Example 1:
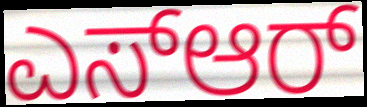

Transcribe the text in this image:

ಎಸ್ಆರ್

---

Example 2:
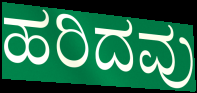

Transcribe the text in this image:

ಹರಿದವು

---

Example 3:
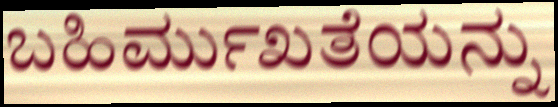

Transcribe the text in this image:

ಬಹಿರ್ಮುಖತೆಯನ್ನು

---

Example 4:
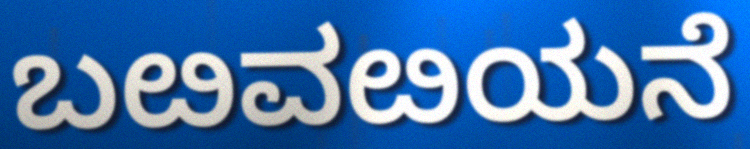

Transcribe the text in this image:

ಬೞವೞಯನೆ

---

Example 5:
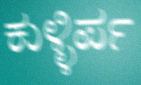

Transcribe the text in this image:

ಕುಳ್ಳಿರ್ಪ